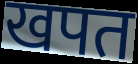
खपत